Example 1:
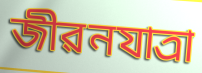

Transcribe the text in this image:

জীৱনযাত্ৰা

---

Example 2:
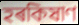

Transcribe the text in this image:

হৰকিষাণ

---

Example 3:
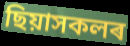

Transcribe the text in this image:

ছিয়াসকলৰ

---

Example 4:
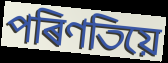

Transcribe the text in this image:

পৰিণতিয়ে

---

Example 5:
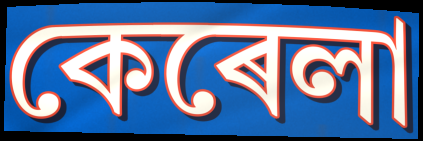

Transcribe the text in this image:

কেৰেলা